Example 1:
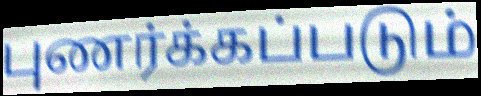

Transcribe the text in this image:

புணர்க்கப்படும்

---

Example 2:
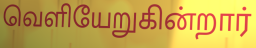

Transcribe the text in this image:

வெளியேறுகின்றார்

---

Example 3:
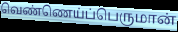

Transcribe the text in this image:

வெண்ணெய்ப்பெருமான்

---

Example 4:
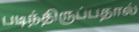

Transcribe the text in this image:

படிந்திருப்பதால்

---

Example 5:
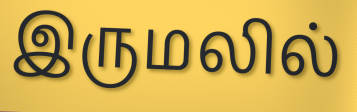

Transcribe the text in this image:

இருமலில்